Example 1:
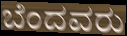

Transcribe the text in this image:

ಬೆಂದವರು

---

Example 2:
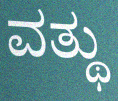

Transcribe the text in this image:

ವತ್ಥು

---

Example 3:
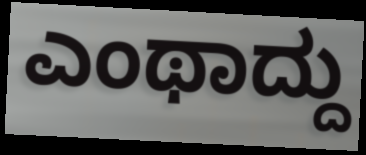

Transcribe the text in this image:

ಎಂಥಾದ್ದು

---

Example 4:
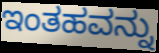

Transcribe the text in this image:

ಇಂತಹವನ್ನು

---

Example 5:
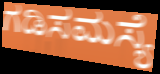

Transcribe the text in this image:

ಗಡಿಸಮಸ್ಯೆ